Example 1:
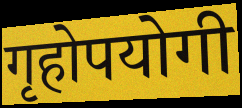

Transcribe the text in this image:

गृहोपयोगी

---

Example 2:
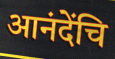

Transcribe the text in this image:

आनंदेंचि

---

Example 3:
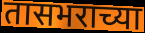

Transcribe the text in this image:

तासभराच्या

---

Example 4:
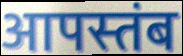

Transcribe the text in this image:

आपस्तंब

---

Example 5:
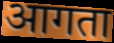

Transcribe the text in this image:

आगता